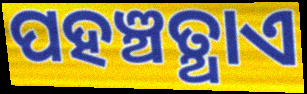
ପହଞ୍ଚତ୍ଥାଏ